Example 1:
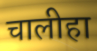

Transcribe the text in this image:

चालीहा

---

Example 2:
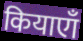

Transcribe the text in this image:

कियाएाँ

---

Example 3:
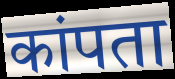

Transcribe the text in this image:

कांपता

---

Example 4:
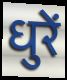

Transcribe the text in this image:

धुरें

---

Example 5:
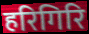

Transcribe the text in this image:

हरिगिरि